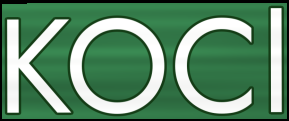
KOCl